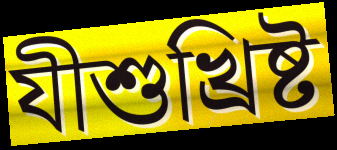
যীশুখ্রিষ্ট